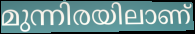
മുന്നിരയിലാണ്